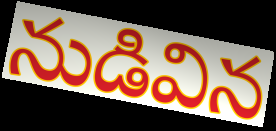
నుడివిన